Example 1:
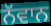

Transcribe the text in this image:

ਨੱਵਾਨ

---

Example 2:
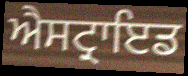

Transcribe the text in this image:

ਐਸਟ੍ਰਾਇਡ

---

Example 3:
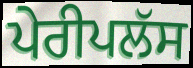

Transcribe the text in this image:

ਪੇਰੀਪਲੱਸ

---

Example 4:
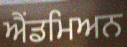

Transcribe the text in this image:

ਐਂਡਮਿਅਨ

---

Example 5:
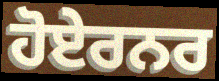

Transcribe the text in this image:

ਹੋਏਰਨਰ